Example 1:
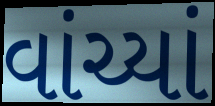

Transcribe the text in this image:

વાંચ્યાં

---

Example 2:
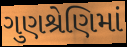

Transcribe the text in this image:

ગુણશ્રેણિમાં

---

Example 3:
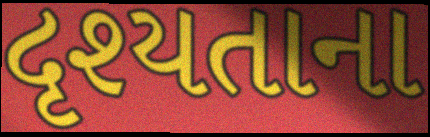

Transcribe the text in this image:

દૃશ્યતાના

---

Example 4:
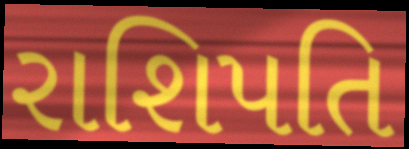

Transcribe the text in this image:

રાશિપતિ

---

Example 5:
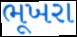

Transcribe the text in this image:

ભૂખરા